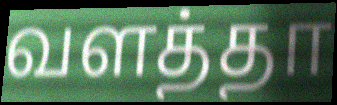
வளத்தா